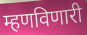
म्हणविणारी